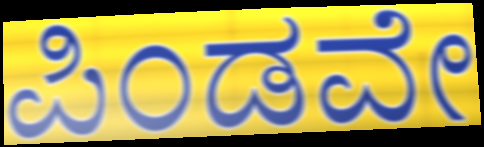
ಪಿಂಡವೇ